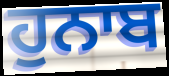
ਹੁਨਾਬ